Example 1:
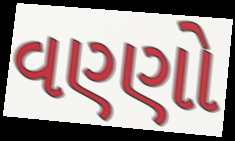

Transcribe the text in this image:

વણ્ણો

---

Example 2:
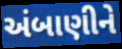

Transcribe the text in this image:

અંબાણીને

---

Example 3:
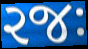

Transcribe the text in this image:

રજઃ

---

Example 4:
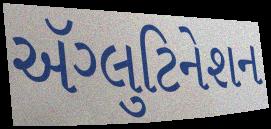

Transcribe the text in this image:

ઍગ્લુટિનેશન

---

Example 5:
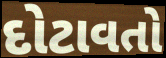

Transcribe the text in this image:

દોટાવતો